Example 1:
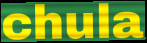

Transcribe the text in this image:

chula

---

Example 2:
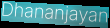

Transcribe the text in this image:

Dhananjayan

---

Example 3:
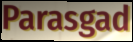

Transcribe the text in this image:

Parasgad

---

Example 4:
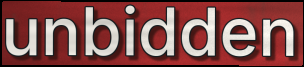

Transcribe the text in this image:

unbidden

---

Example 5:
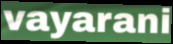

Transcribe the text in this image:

vayarani